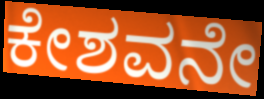
ಕೇಶವನೇ